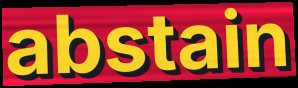
abstain